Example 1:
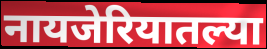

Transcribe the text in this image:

नायजेरियातल्या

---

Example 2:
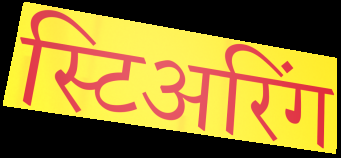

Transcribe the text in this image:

स्टिअरिंग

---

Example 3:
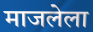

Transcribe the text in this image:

माजलेला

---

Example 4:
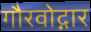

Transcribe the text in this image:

गौरवोद्गार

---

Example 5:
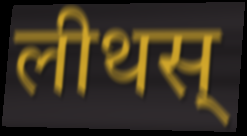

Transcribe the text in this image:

लीथस्